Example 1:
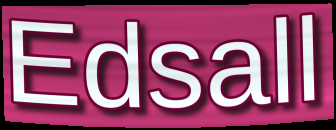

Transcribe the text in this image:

Edsall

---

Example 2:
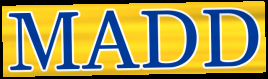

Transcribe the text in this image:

MADD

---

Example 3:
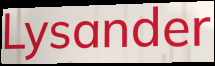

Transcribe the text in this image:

Lysander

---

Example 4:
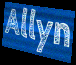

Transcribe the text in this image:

Allyn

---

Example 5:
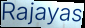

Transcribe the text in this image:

Rajayas